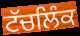
ਟੱਚਲਿੰਕ